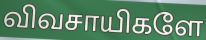
விவசாயிகளே